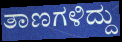
ತಾಣಗಳಿದ್ದು